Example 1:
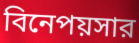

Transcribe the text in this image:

বিনেপয়সার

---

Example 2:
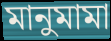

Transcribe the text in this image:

মানুমামা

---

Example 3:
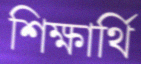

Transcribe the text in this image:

শিক্ষার্থি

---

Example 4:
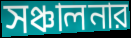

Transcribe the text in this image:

সঞ্চালনার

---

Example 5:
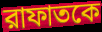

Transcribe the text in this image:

রাফাতকে